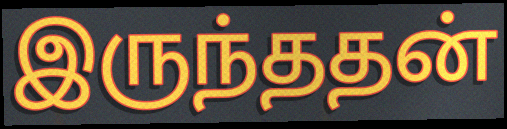
இருந்ததன்